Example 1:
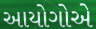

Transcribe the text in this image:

આયોગોએ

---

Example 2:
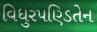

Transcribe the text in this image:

વિધુરપણ્ડિતેન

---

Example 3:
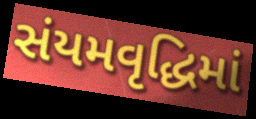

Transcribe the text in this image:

સંયમવૃદ્ધિમાં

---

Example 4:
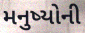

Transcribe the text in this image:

મનુષ્યોની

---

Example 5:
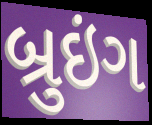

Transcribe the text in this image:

બ્રુઇંગ